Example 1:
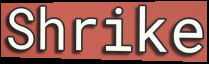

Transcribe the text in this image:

Shrike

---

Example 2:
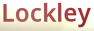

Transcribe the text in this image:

Lockley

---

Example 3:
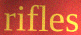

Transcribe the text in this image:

rifles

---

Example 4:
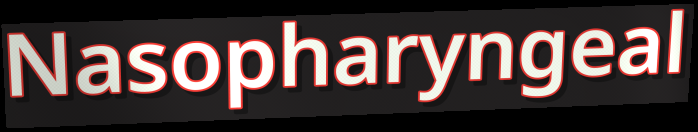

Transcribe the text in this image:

Nasopharyngeal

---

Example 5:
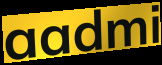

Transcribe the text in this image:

aadmi